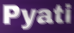
Pyati